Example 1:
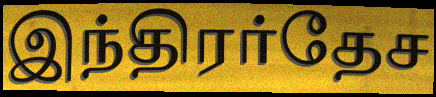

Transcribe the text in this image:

இந்திரர்தேச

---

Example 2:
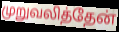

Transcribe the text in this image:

முறுவலித்தேன்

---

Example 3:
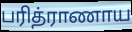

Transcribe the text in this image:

பரித்ராணாய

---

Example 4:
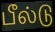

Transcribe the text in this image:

பீல்டு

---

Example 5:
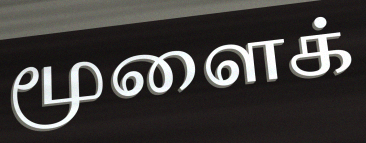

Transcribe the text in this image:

மூளைக்